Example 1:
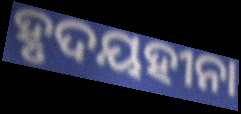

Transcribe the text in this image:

ହୃଦୟହୀନା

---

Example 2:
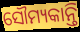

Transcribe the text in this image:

ସୌମ୍ୟକାନ୍ତି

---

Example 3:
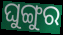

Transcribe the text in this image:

ଘୁଙ୍ଗୁର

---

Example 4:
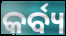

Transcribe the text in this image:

କର୍ବ୍ୟ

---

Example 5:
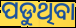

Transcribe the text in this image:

ପଡୁଥିବା